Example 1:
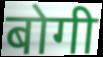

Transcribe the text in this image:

बोगी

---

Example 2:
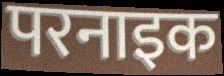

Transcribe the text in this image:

परनाइक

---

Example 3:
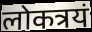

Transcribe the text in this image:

लोकत्रयं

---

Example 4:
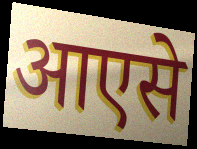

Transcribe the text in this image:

आएसे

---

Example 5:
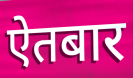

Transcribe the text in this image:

ऐतबार